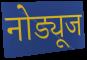
नोड्यूज